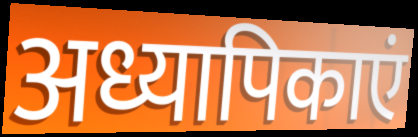
अध्यापिकाएं